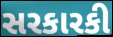
સરકારકી